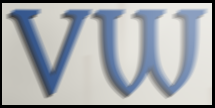
VW